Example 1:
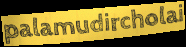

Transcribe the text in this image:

palamudircholai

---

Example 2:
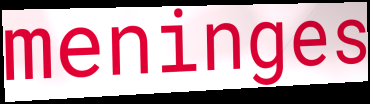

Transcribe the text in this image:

meninges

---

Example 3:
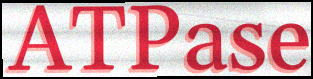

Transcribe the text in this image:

ATPase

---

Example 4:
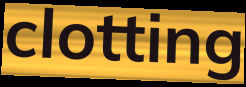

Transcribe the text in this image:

clotting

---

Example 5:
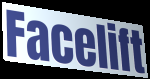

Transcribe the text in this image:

Facelift